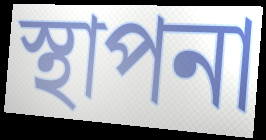
স্থাপনা